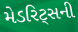
મેડરિટ્સની